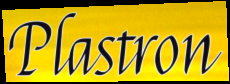
Plastron